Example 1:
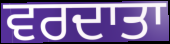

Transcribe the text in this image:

ਵਰਦਾਤਾ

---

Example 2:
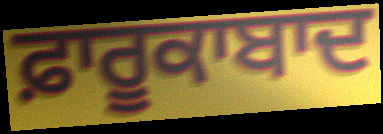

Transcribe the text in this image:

ਫ਼ਾਰੂਕਾਬਾਦ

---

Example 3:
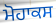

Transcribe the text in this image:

ਮੋਹਾਕਸ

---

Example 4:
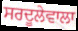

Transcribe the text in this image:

ਸਰਦੂਲੇਵਾਲਾ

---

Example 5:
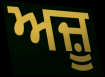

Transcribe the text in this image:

ਅਜ਼ੂ